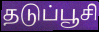
தடுப்பூசி